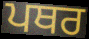
ਪਥਰ